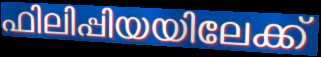
ഫിലിപ്പിയയിലേക്ക്